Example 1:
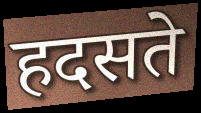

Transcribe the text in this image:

हदसते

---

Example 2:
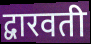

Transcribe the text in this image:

द्वारवती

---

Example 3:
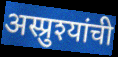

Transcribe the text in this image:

अस्प्रुश्यांची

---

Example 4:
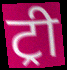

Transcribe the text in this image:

ट्री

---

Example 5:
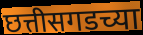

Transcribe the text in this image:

छत्तीसगडच्या